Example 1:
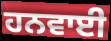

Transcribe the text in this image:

ਹਨਵਾਈ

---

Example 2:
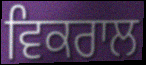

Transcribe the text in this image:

ਵਿਕਰਾਲ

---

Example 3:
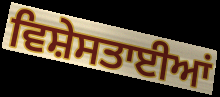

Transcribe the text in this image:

ਵਿਸ਼ੇਸਤਾਈਆਂ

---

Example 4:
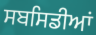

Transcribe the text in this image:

ਸਬਸਿਡੀਆਂ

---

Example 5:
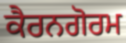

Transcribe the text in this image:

ਕੈਰਨਗੋਰਮ